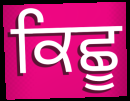
ਕਿਛੂ